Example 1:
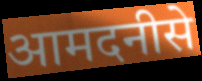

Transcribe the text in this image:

आमदनीसे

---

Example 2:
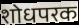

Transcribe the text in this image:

शोधपरक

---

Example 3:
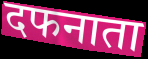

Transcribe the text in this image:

दफनाता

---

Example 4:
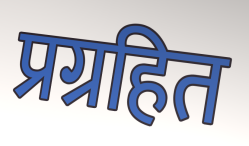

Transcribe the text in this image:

प्रग्रहित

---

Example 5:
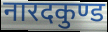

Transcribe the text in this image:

नारदकुण्ड